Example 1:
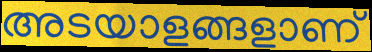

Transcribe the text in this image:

അടയാളങ്ങളാണ്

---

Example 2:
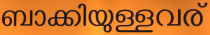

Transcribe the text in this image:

ബാക്കിയുള്ളവര്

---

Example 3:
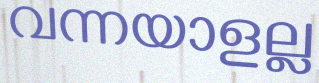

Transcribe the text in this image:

വന്നയാളല്ല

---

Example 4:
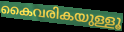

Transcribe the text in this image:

കൈവരികയുള്ളൂ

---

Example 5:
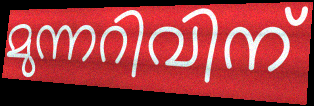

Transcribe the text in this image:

മുന്നറിവിന്